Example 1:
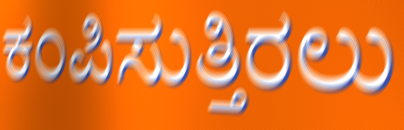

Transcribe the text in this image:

ಕಂಪಿಸುತ್ತಿರಲು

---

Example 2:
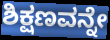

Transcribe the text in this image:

ಶಿಕ್ಷಣವನ್ನೇ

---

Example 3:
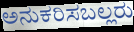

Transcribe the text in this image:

ಅನುಕರಿಸಬಲ್ಲರು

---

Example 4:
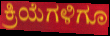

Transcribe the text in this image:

ಕ್ರಿಯೆಗಳಿಗೂ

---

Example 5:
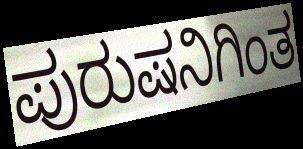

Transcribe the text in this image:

ಪುರುಷನಿಗಿಂತ